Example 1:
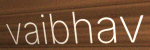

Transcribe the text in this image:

vaibhav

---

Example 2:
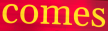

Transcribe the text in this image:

comes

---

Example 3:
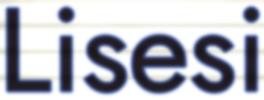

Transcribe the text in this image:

Lisesi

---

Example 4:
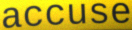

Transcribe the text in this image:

accuse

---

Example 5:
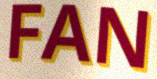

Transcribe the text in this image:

FAN